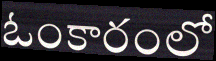
ఓంకారంలో